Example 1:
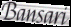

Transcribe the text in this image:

Bansari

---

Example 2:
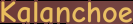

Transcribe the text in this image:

Kalanchoe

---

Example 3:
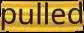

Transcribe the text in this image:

pulled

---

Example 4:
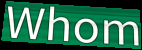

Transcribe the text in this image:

Whom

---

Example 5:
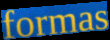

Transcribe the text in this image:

formas